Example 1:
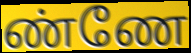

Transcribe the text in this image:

ண்ணே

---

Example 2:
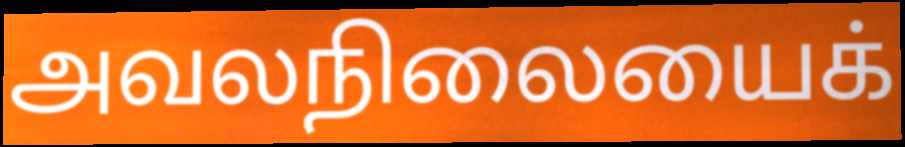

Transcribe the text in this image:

அவலநிலையைக்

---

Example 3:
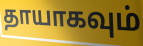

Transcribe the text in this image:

தாயாகவும்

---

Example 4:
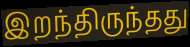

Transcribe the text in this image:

இறந்திருந்தது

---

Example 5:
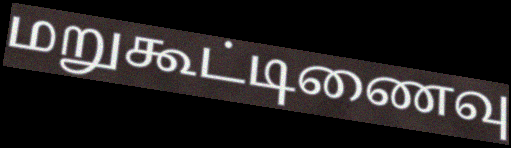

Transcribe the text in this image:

மறுகூட்டிணைவு